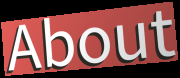
About